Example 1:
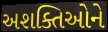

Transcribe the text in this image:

અશક્તિઓને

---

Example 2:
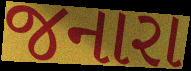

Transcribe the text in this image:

જનારા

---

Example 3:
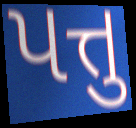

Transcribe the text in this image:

પત્તુ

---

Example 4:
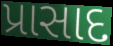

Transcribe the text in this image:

પ્રાસાદ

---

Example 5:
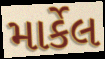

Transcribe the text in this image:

માર્કેલ